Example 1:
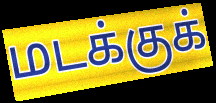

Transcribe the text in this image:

மடக்குக்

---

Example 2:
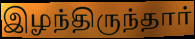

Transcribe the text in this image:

இழந்திருந்தார்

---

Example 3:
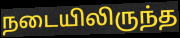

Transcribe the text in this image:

நடையிலிருந்த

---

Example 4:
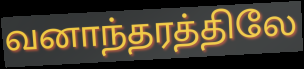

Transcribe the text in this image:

வனாந்தரத்திலே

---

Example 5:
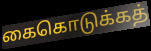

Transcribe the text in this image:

கைகொடுக்கத்